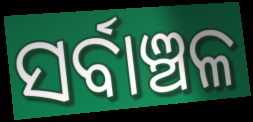
ସର୍ବାଞ୍ଚଳ